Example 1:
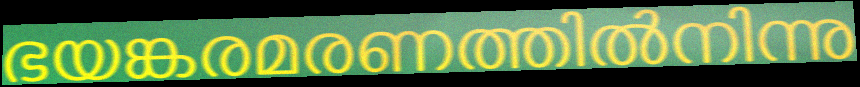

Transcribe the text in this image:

ഭയങ്കരമരണത്തിൽനിന്നു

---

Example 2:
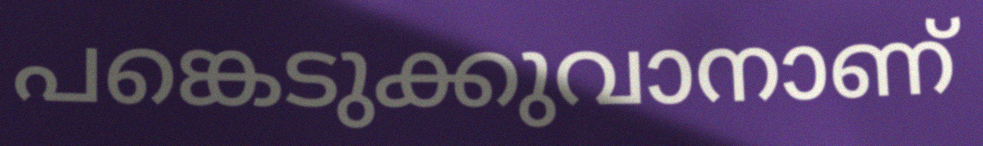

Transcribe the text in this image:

പങ്കെടുക്കുവാനാണ്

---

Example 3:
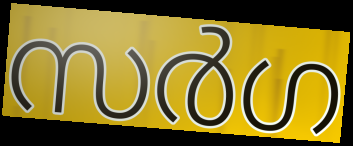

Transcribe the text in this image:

സർഗ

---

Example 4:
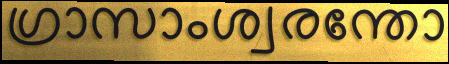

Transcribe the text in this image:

ഗ്രാസാംശ്വരന്തോ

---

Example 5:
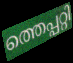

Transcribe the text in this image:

ത്തെപ്പറ്റി